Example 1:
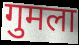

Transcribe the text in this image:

गुमला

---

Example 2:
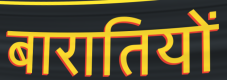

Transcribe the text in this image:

बारातियों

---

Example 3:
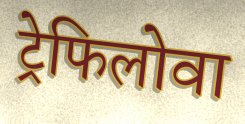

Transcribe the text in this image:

ट्रेफिलोवा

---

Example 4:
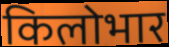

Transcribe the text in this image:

किलोभार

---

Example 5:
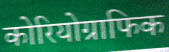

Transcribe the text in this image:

कोरियोग्राफिक